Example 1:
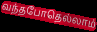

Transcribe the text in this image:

வந்தபோதெல்லாம்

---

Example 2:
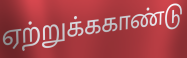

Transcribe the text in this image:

ஏற்றுக்ககாண்டு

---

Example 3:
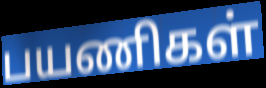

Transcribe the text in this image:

பயணிகள்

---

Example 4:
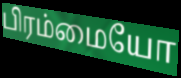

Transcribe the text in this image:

பிரம்மையோ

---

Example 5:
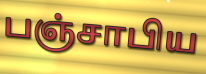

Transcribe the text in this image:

பஞ்சாபிய